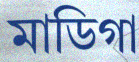
মাডিগা